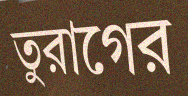
তুরাগের